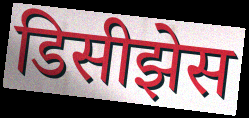
डिसीझेस